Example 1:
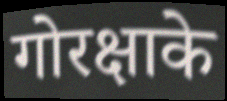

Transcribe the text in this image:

गोरक्षाके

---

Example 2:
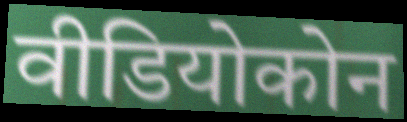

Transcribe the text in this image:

वीडियोकोन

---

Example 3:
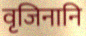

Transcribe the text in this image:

वृजिनानि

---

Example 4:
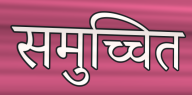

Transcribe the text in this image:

समुच्चित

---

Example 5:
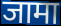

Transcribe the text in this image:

जामा